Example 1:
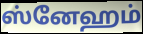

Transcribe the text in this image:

ஸ்னேஹம்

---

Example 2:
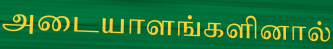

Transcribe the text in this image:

அடையாளங்களினால்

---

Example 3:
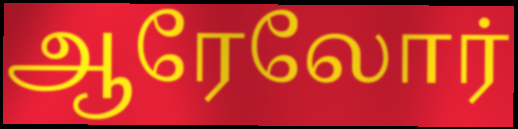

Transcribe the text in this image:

ஆரேலோர்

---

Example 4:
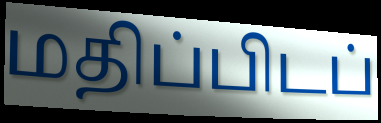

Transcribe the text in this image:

மதிப்பிடப்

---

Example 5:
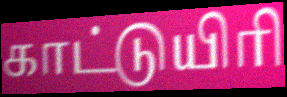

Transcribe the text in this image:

காட்டுயிரி